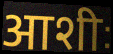
आशीः